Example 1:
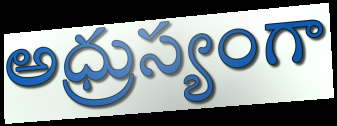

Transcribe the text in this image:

అధ్రుస్యంగా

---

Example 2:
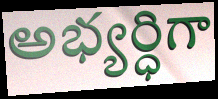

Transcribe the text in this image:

అభ్యర్ధిగా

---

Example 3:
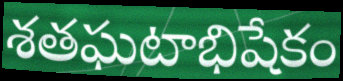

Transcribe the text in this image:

శతఘటాభిషేకం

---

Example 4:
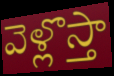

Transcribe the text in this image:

వెళ్లొస్తా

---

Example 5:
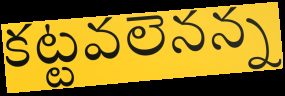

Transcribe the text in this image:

కట్టవలెనన్న